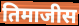
तिमाजीस